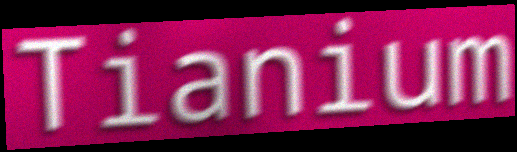
Tianium